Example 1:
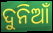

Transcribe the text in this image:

ଦୁନିଆଁ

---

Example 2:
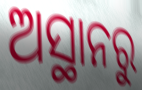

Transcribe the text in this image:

ଅସ୍ଥାନରୁ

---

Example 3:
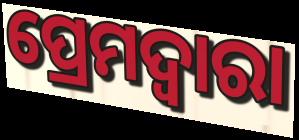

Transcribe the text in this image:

ପ୍ରେମଦ୍ୱାରା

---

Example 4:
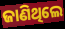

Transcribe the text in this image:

ଜାଣିଥିଲେ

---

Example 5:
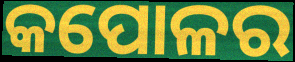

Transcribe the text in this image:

କପୋଳର